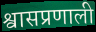
श्वासप्रणाली